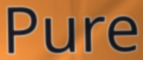
Pure